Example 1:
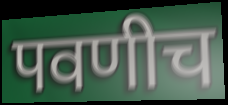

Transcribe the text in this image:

पवणीच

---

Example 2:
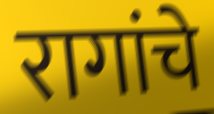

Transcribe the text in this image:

रागांचे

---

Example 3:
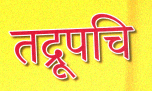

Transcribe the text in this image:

तद्रूपचि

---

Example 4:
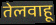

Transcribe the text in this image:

तेलवाहू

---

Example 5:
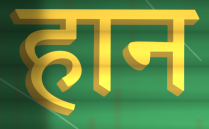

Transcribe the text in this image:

हान